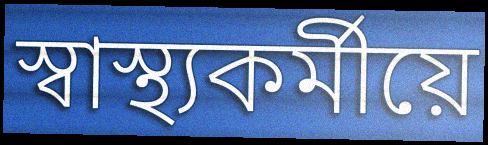
স্বাস্থ্যকৰ্মীয়ে